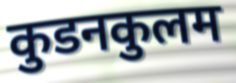
कुडनकुलम